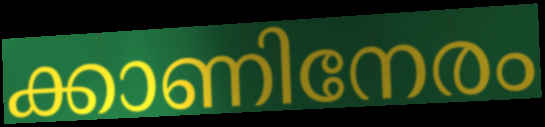
ക്കാണിനേരം